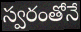
స్వరంతోనే